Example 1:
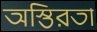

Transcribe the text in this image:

অস্তিরতা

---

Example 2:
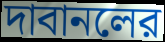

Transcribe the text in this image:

দাবানলের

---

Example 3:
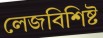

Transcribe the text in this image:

লেজবিশিষ্ট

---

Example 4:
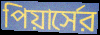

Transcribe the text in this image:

পিয়ার্সের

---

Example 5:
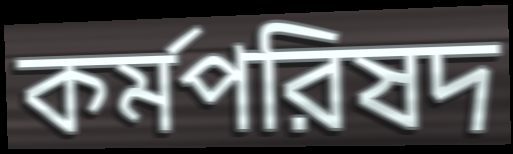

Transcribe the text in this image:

কর্মপরিষদ